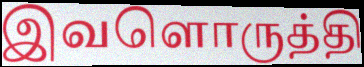
இவளொருத்தி